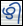
ഴി